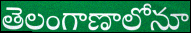
తెలంగాణాలోనూ